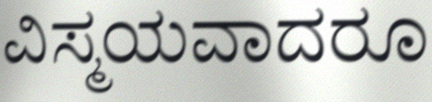
ವಿಸ್ಮಯವಾದರೂ